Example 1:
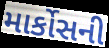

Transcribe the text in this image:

માર્કોસની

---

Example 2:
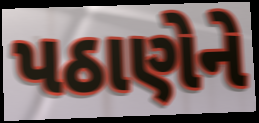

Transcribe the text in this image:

પઠાણેને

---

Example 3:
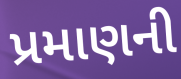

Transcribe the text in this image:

પ્રમાણની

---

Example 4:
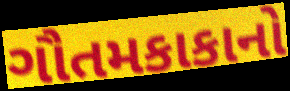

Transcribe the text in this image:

ગૌતમકાકાનો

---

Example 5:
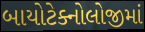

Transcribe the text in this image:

બાયોટેક્નોલોજીમાં